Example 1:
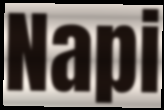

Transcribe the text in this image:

Napi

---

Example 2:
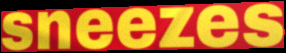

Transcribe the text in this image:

sneezes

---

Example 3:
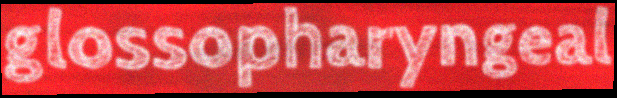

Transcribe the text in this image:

glossopharyngeal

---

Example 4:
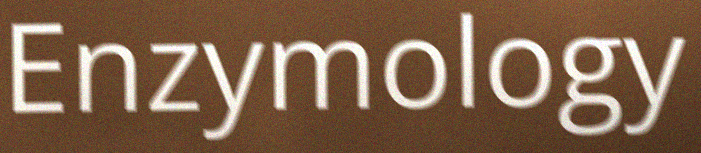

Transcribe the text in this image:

Enzymology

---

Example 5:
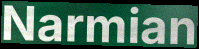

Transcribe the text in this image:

Narmian